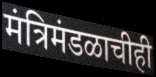
मंत्रिमंडळाचीही